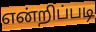
என்றிப்படி